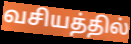
வசியத்தில்